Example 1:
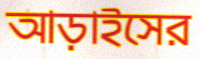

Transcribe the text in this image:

আড়াইসের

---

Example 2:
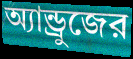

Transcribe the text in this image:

অ্যান্ড্রুজের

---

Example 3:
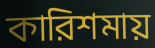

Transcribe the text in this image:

কারিশমায়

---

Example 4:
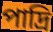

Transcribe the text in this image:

পাদ্রি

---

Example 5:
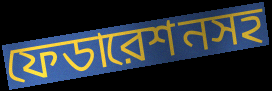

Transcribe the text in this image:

ফেডারেশনসহ